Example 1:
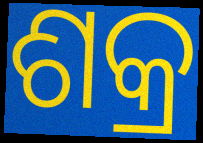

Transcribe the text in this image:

ଶକ୍ର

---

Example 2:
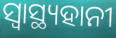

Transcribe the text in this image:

ସ୍ବାସ୍ଥ୍ୟହାନୀ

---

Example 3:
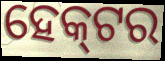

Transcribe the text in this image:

ହେକ୍‌ଟର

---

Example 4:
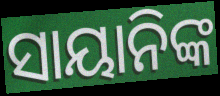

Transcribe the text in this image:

ସାୟାନିଙ୍କ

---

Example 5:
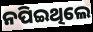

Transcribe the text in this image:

ନପିଇଥିଲେ